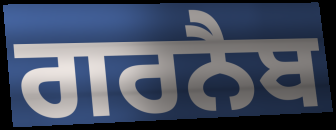
ਗਰਨੈਬ